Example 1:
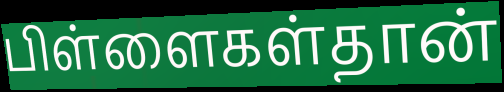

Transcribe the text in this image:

பிள்ளைகள்தான்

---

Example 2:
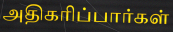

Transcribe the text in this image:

அதிகரிப்பார்கள்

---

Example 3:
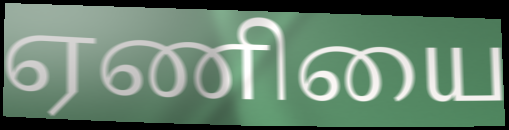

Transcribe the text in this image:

ஏணியை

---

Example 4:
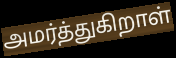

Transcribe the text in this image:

அமர்த்துகிறாள்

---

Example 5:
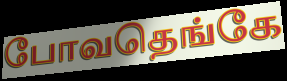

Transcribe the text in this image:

போவதெங்கே